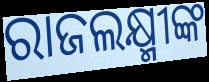
ରାଜଲକ୍ଷ୍ମୀଙ୍କ